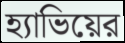
হ্যাভিয়ের